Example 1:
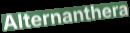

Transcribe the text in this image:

Alternanthera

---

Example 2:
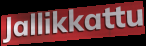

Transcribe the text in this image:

Jallikkattu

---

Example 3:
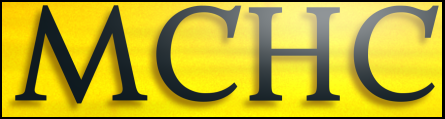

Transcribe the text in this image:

MCHC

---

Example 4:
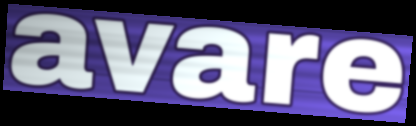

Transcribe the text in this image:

avare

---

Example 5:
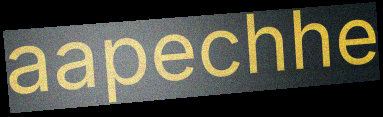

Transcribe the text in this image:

aapechhe